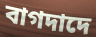
বাগদাদে